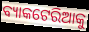
ବ୍ୟାକଟେରିଆକୁ